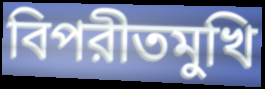
বিপরীতমুখি